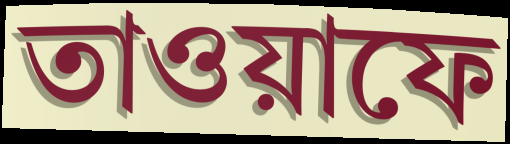
তাওয়াফে